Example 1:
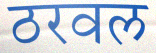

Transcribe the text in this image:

ठरवल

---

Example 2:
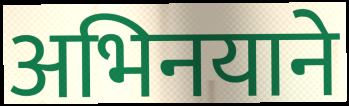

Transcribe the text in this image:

अभिनयाने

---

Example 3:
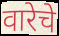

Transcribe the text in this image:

वारेचे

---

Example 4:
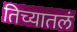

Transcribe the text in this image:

तिच्यातलं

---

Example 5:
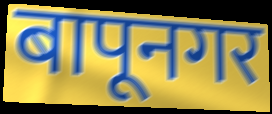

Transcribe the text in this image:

बापूनगर